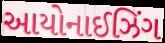
આયોનાઈઝિંગ